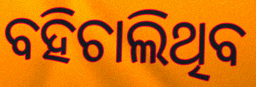
ବହିଚାଲିଥିବ